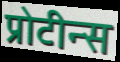
प्रोटीन्स